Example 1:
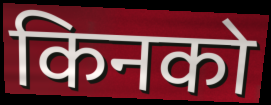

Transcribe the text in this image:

किनको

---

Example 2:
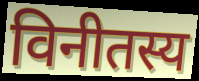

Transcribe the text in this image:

विनीतस्य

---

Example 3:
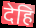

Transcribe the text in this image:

देहि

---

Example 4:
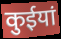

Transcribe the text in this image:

कुईयां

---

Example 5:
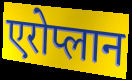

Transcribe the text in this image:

एरोप्लान